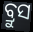
ବ୍ରୁସ